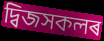
দ্বিজসকলৰ